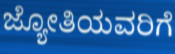
ಜ್ಯೋತಿಯವರಿಗೆ